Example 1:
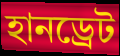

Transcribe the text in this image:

হানড্রেট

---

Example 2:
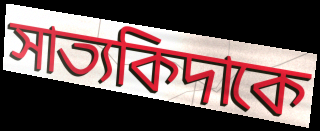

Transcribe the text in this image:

সাত্যকিদাকে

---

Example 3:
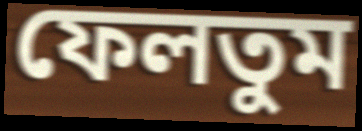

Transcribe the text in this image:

ফেলতুম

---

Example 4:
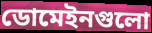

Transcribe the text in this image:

ডোমেইনগুলো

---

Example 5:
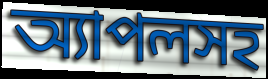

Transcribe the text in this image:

অ্যাপলসহ